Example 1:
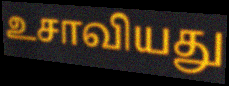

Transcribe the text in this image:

உசாவியது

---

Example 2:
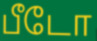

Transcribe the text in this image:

பீடோ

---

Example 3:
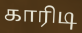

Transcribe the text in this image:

காரிடி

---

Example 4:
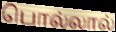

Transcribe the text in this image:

பொல்லால்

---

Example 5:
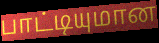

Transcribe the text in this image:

பாட்டியுமான